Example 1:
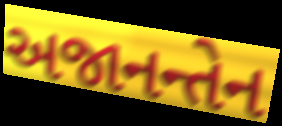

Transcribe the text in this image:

અજાનન્તેન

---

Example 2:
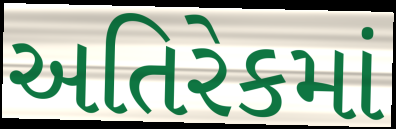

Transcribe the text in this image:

અતિરેકમાં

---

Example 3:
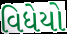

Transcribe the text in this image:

વિધેયો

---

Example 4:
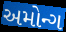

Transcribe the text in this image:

અમોન્ગ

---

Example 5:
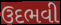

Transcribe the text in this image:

ઉદભવી